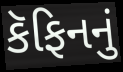
કૅફિનનું